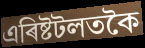
এৰিষ্টটলতকৈ